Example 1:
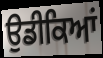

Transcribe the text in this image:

ਉਡੀਕਿਆਂ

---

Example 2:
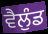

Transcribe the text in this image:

ਵੈਲੁੰਡ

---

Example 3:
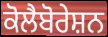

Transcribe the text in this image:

ਕੋਲੈਬੋਰੇਸ਼ਨ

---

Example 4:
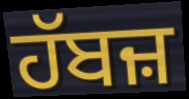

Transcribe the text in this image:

ਹੱਬਜ਼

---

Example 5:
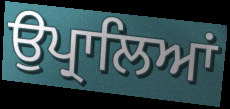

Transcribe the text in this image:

ਉਪ੍ਰਾਲਿਆਂ